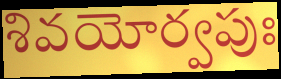
శివయోర్వపుః